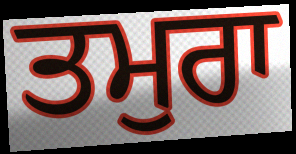
ਤਮੁਰਾ